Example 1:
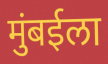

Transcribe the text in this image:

मुंबईला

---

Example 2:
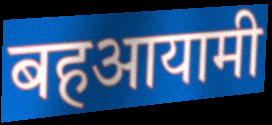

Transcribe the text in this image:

बहआयामी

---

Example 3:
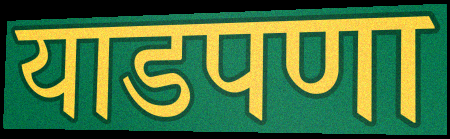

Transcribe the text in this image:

याडपणा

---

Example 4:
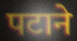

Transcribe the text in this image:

पटाने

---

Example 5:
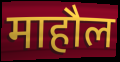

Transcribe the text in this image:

माहौल